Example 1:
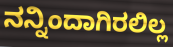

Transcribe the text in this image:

ನನ್ನಿಂದಾಗಿರಲಿಲ್ಲ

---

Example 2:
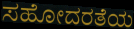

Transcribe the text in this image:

ಸಹೋದರತೆಯ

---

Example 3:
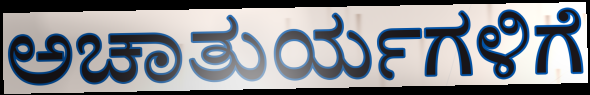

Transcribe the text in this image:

ಅಚಾತುರ್ಯಗಳಿಗೆ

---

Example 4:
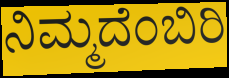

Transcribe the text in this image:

ನಿಮ್ಮದೆಂಬಿರಿ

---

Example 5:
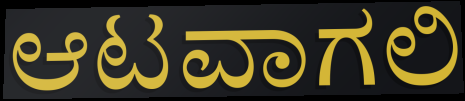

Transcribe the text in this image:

ಆಟವಾಗಲಿ